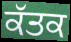
ਕੱਤਕ